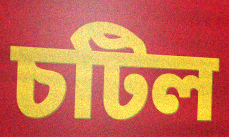
চটিল